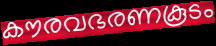
കൗരവഭരണകൂടം